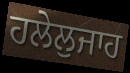
ਹਲੇਲੁਜਾਹ